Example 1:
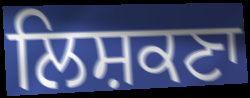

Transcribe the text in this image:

ਲਿਸ਼ਕਣਾ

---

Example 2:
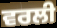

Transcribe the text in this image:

ਵਰਲੀ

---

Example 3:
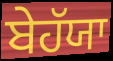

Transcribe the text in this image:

ਬੇਹੱਯਾ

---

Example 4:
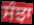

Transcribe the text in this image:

ਸੰਝਾ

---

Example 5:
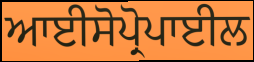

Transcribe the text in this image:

ਆਈਸੋਪ੍ਰੋਪਾਈਲ